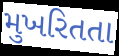
મુખરિતતા